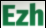
Ezh